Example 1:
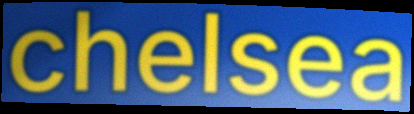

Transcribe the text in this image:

chelsea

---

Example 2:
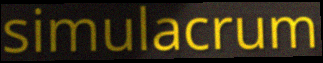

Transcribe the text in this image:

simulacrum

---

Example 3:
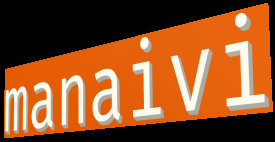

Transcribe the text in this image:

manaivi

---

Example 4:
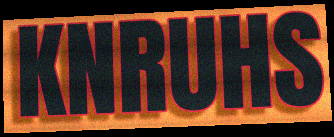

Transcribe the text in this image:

KNRUHS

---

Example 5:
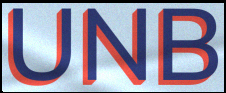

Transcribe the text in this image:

UNB